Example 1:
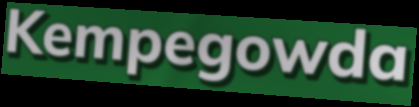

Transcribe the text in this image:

Kempegowda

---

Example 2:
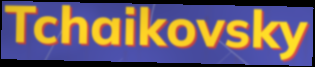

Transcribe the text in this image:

Tchaikovsky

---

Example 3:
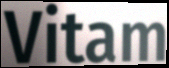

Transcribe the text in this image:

Vitam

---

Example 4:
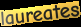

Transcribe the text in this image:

laureates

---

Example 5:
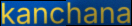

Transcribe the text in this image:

kanchana